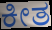
ಕೀತ